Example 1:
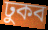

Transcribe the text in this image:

ঢুকব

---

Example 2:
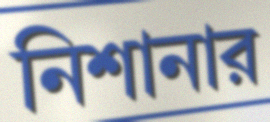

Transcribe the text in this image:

নিশানার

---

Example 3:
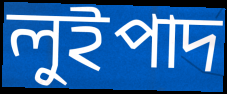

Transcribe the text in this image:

লুইপাদ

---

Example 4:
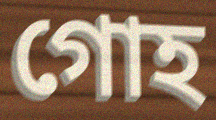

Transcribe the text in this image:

গোহ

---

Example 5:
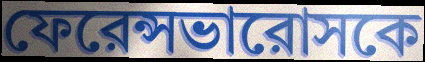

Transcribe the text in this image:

ফেরেন্সভারোসকে